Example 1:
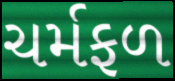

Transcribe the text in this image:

ચર્મફળ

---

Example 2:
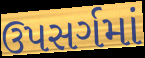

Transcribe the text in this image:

ઉપસર્ગમાં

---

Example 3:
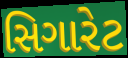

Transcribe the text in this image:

સિગારેટ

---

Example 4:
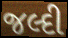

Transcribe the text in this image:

જલ્દી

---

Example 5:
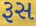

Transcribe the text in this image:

રૂસ